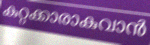
കുറ്റക്കാരാകുവാൻ